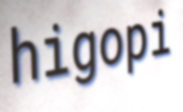
higopi